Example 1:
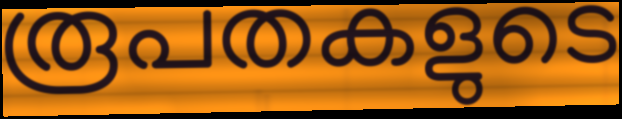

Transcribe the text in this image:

രൂപതകളുടെ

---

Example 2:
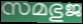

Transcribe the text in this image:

സമഭുജ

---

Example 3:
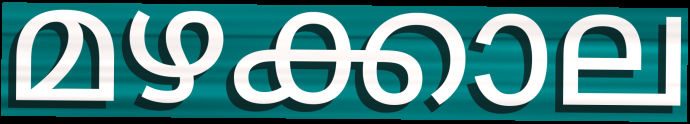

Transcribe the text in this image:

മഴക്കാല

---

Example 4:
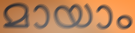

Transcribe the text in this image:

മായാം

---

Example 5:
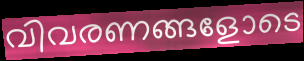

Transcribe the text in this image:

വിവരണങ്ങളോടെ